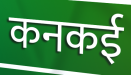
कनकई